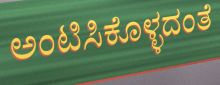
ಅಂಟಿಸಿಕೊಳ್ಳದಂತೆ